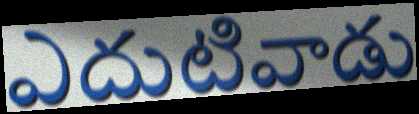
ఎదుటివాడు